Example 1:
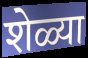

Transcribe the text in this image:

शेळ्या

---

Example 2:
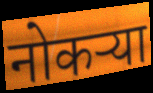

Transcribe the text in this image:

नोकऱ्या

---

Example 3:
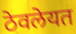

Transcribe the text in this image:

ठेवलेयत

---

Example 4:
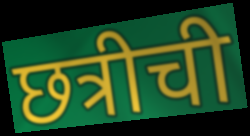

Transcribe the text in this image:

छत्रीची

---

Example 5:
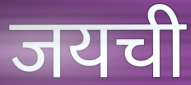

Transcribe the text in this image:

जयची